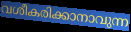
വശീകരിക്കാനാവുന്ന